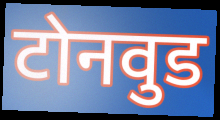
टोनवुड